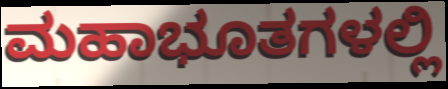
ಮಹಾಭೂತಗಳಲ್ಲಿ